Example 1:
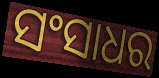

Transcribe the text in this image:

ସଂସାଧର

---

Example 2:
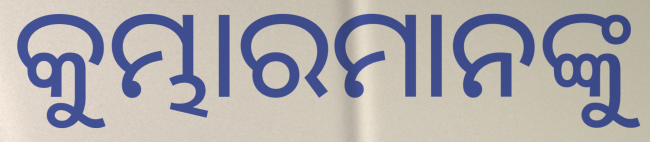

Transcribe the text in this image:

କୁମ୍ଭାରମାନଙ୍କୁ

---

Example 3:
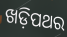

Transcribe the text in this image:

ଖଡ଼ିପଥର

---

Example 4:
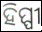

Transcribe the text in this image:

ହିପ୍ପୀ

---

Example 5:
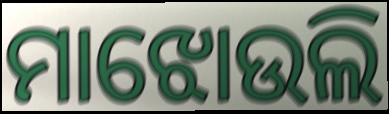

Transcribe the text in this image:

ମାଝୋଉଲି